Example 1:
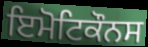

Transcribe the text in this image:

ਇਮੋਟਿਕੌਨਸ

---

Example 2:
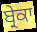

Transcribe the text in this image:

ਬ੍ਰੇਕਾ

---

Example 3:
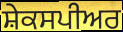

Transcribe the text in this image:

ਸ਼ੇਕਸਪੀਅਰ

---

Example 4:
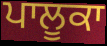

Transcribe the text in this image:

ਪਾਲੂਕਾ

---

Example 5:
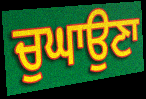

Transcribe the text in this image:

ਚੁਘਾਉਣਾ